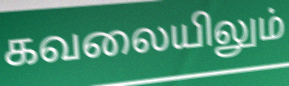
கவலையிலும்